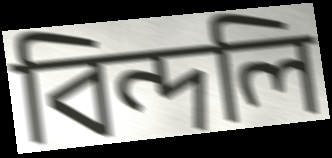
বিন্দলি